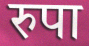
रुपा